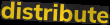
distribute